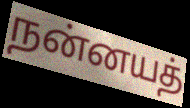
நன்னயத்